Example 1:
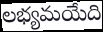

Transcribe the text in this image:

లభ్యమయేది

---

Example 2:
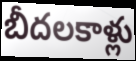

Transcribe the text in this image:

బీదలకాళ్లు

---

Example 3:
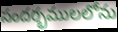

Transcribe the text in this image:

సందర్భములలోను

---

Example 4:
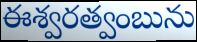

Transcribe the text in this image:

ఈశ్వరత్వంబును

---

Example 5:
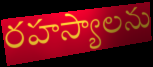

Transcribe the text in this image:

రహస్యాలను